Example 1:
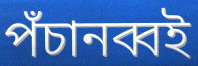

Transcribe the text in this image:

পঁচানব্বই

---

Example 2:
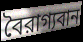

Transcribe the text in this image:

বৈরাগ্যবান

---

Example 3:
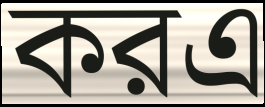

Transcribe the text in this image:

করএ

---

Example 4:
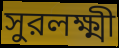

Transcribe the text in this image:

সুরলক্ষ্মী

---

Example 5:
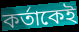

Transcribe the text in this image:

কর্তাকেই